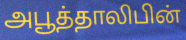
அபூத்தாலிபின்